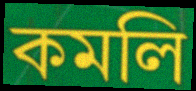
কমলি